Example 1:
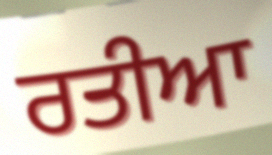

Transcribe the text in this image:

ਰਤੀਆ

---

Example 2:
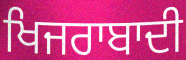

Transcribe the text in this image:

ਖਿਜਰਾਬਾਦੀ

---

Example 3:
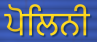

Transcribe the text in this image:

ਪੋਲਿਨੀ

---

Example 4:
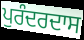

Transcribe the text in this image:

ਪੁਰੰਦਰਦਾਸ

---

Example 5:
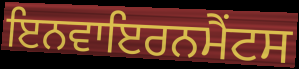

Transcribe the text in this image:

ਇਨਵਾਇਰਨਮੈਂਟਸ